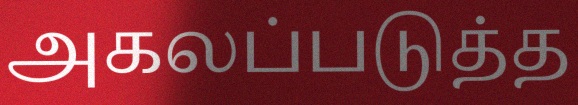
அகலப்படுத்த